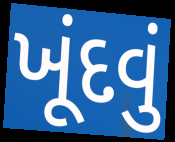
ખૂંદવું